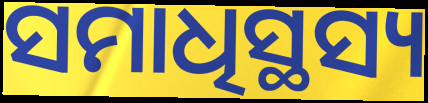
ସମାଧିସ୍ଥସ୍ୟ